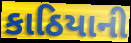
કાઠિયાની